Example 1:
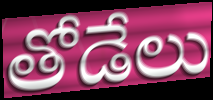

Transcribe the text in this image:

తోడేలు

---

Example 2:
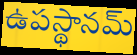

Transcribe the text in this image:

ఉపస్థానమ్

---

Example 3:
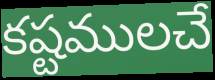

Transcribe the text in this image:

కష్టములచే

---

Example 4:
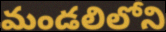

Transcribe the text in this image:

మండలిలోని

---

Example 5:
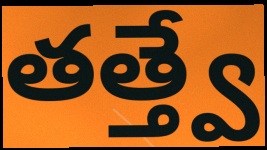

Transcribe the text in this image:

తత్త్వే